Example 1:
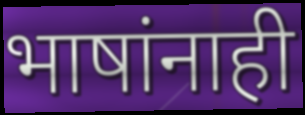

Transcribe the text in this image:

भाषांनाही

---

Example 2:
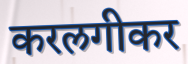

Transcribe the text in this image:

करलगीकर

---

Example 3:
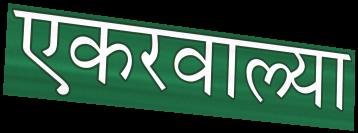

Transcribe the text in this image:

एकरवाल्या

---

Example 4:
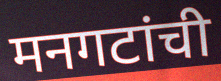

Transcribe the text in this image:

मनगटांची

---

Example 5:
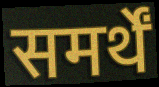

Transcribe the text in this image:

समर्थें